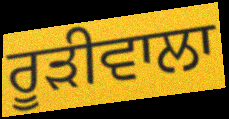
ਰੂਡ਼ੀਵਾਲਾ